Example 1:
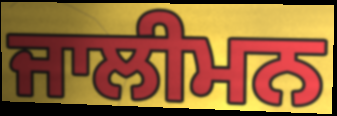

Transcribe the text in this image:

ਜਾਲੀਮਨ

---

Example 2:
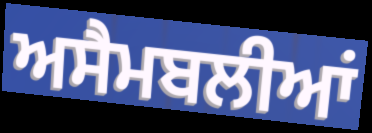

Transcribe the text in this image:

ਅਸੈਮਬਲੀਆਂ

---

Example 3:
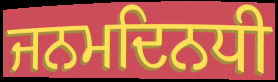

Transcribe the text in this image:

ਜਨਮਦਿਨਧੀ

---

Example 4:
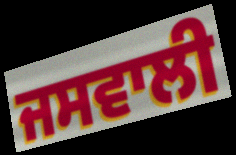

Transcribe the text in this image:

ਜਸਵਾਲੀ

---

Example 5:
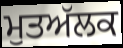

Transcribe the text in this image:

ਮੁਤਅੱਲਕ